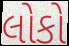
લોકો